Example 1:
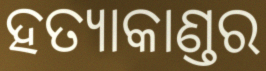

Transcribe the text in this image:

ହତ୍ୟାକାଣ୍ଡର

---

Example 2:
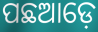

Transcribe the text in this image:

ପଛଆଡ଼େ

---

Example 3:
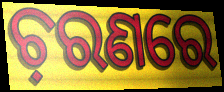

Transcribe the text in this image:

ଚ଼ରଣରେ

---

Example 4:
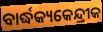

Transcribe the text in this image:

ବାର୍ଦ୍ଧକ୍ୟକେନ୍ଦ୍ରୀକ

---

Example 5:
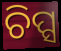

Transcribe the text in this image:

ଚିପ୍ସ